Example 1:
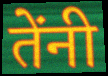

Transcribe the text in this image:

तेंनी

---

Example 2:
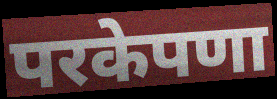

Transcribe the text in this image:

परकेपणा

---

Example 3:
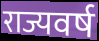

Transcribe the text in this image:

राज्यवर्ष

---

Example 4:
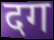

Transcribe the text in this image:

दग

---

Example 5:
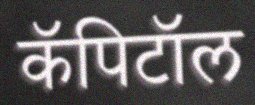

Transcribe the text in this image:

कॅपिटॉल